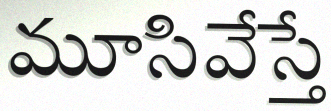
మూసివేస్తే